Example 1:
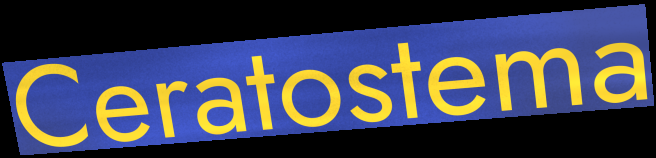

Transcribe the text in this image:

Ceratostema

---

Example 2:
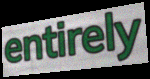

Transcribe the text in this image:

entirely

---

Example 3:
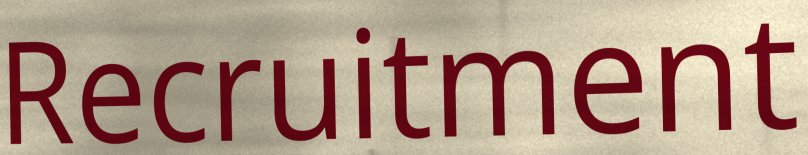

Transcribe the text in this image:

Recruitment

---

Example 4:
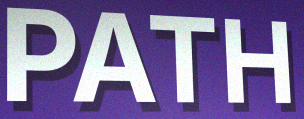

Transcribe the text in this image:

PATH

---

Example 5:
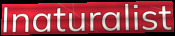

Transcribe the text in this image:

Inaturalist